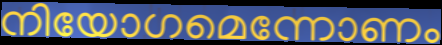
നിയോഗമെന്നോണം